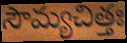
సౌమ్యచిత్తః